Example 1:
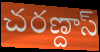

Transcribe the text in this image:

చరణ్దాస్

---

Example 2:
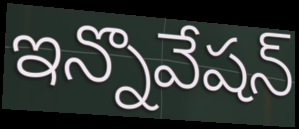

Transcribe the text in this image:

ఇన్నొవేషన్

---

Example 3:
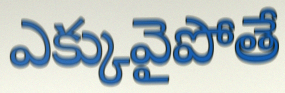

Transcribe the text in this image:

ఎక్కువైపోతే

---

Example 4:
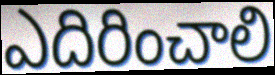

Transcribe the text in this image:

ఎదిరించాలి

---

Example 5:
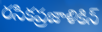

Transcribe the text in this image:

రసికప్రజాళికిన్